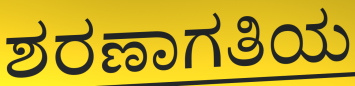
ಶರಣಾಗತಿಯ